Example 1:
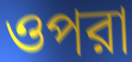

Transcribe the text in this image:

ওপরা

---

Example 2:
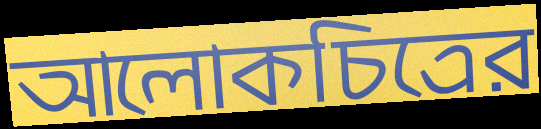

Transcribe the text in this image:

আলোকচিত্রের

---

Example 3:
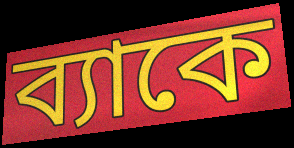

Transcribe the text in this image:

ব্যাকে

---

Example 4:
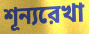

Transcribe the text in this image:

শূন্যরেখা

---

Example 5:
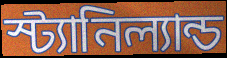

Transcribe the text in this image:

স্ট্যানিল্যান্ড